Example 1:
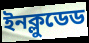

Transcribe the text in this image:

ইনক্লুডেড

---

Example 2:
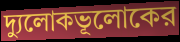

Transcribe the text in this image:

দ্যুলোকভূলোকের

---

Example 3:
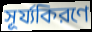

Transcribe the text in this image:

সূর্য্যকিরণে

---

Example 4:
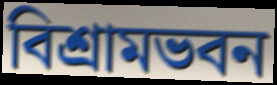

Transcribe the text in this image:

বিশ্রামভবন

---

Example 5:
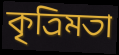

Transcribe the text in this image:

কৃত্রিমতা